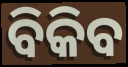
ବିକିବ